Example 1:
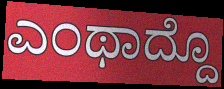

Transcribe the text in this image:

ಎಂಥಾದ್ದೊ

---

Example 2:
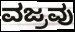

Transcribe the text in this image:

ವಜ್ರವು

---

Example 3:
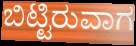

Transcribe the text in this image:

ಬಿಟ್ಟಿರುವಾಗ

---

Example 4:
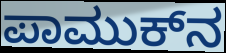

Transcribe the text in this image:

ಪಾಮುಕ್‍ನ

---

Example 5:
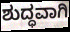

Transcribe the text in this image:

ಶುದ್ಧವಾಗಿ